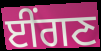
ਈਂਗਣ